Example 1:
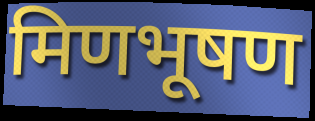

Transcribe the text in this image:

मिणभूषण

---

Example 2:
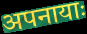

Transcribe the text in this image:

अपनायाः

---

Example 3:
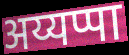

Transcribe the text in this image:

अय्यप्पा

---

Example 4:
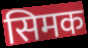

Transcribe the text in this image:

सिमक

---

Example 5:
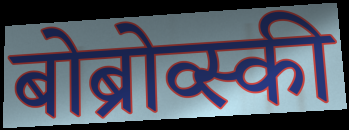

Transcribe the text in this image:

बोब्रोव्स्की